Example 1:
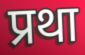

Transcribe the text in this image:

प्रथा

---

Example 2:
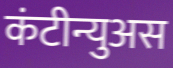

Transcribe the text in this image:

कंटीन्युअस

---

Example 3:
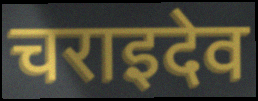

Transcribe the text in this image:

चराइदेव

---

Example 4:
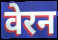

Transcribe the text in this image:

वेरन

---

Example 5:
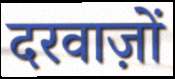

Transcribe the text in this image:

दरवाज़ों